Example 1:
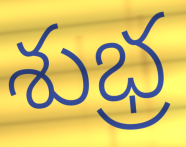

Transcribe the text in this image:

శుభ్ర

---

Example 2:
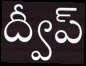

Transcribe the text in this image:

ద్వీప్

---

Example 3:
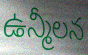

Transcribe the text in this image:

ఉన్మీలన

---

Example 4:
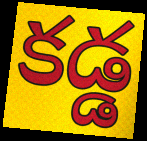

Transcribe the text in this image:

కడ్డ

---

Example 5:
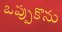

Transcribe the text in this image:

ఒప్పుకొను